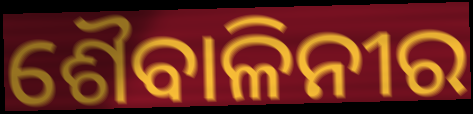
ଶୈବାଳିନୀର